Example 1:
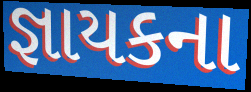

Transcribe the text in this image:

જ્ઞાયકના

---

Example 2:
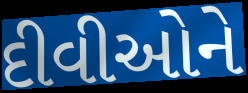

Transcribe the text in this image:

દીવીઓને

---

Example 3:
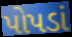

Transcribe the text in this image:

પોપડાં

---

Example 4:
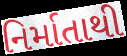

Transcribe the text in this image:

નિર્માતાથી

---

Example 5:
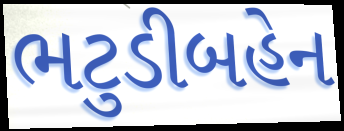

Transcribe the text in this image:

ભટુડીબહેન